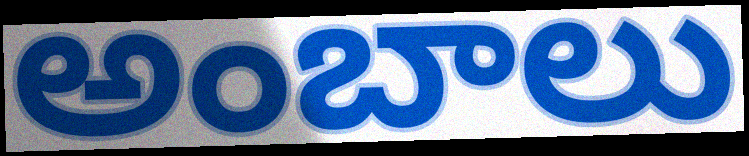
అంబాలు